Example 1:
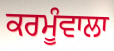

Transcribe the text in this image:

ਕਰਮੂੰਵਾਲਾ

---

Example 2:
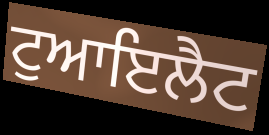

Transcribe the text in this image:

ਟੁਆਇਲੈਟ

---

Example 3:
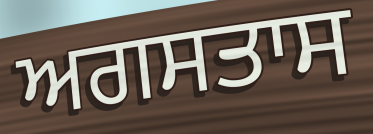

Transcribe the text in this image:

ਅਗਸਤਾਸ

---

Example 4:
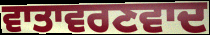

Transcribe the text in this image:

ਵਾਤਾਵਰਣਵਾਦ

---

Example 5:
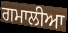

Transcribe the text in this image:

ਗਮਾਲੀਆ